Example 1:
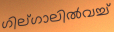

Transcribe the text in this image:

ഗില്ഗാലിൽവച്ച്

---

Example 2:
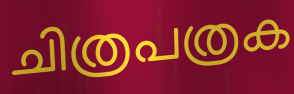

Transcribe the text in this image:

ചിത്രപത്രക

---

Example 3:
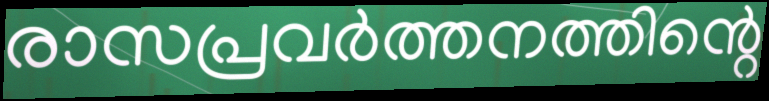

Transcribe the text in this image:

രാസപ്രവർത്തനത്തിന്റെ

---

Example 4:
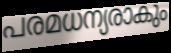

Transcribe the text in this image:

പരമധന്യരാകും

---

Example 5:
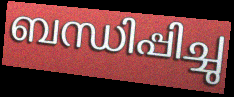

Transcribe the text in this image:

ബന്ധിപ്പിച്ചു